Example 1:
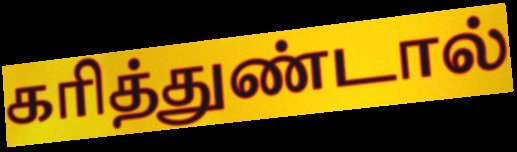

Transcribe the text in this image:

கரித்துண்டால்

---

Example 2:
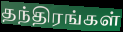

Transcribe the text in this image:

தந்திரங்கள்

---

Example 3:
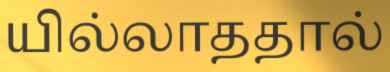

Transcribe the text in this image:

யில்லாததால்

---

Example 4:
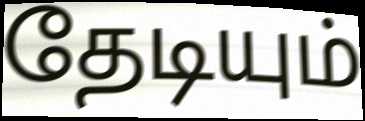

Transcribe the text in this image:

தேடியும்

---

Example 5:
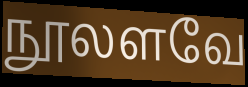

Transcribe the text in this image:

நூலளவே